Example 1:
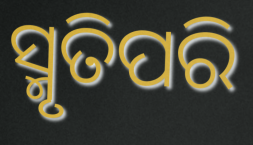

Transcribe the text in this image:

ସ୍ମୃତିପରି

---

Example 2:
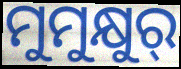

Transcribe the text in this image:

ମୁମୁକ୍ଷୁର୍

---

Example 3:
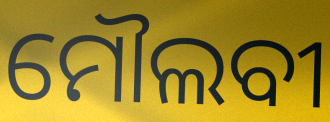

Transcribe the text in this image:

ମୌଲବୀ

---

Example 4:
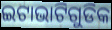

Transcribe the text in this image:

ଇଟାଭାଟିଗୁଡିକ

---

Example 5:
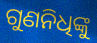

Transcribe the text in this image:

ଗୁଣନିଧିଙ୍କୁ